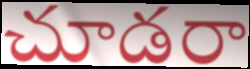
చూడరా